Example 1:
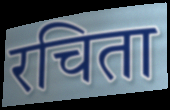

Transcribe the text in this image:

रचिता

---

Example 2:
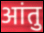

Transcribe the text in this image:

आंतु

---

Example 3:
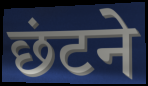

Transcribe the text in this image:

छंटने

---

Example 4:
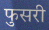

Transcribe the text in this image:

फुसरी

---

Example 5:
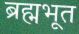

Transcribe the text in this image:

ब्रह्मभूत